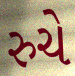
રુચે